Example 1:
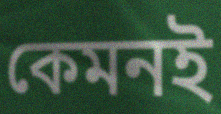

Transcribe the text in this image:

কেমনই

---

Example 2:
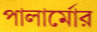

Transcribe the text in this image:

পালার্মোর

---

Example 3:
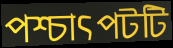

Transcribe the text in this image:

পশ্চাৎপটটি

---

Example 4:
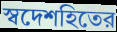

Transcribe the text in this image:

স্বদেশহিতের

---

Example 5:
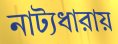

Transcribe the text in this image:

নাট্যধারায়